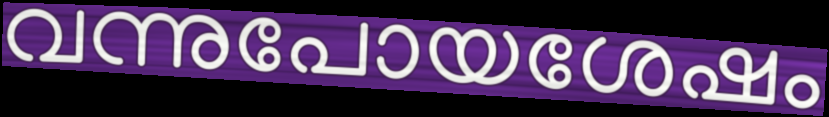
വന്നുപോയശേഷം